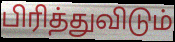
பிரித்துவிடும்